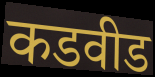
कडवीड